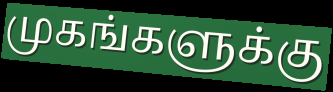
முகங்களுக்கு